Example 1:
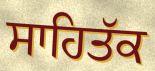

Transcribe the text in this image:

ਸਾਹਿਤੱਕ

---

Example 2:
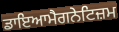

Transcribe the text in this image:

ਡਾਇਆਮੈਗਨੇਟਿਜ਼ਮ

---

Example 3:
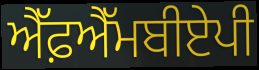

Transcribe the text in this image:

ਐੱਫ਼ਐੱਮਬੀਏਪੀ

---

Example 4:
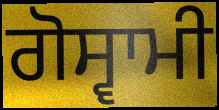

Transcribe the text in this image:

ਗੋਸ੍ਵਾਮੀ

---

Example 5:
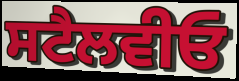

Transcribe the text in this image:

ਸਟੈਲਵੀਓ